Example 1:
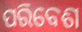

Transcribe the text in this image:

ପରିବେଶ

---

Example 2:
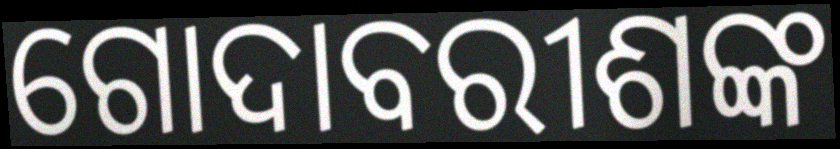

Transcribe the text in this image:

ଗୋଦାବରୀଶଙ୍କ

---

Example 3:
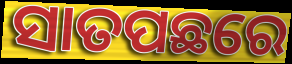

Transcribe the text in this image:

ସାତପଛରେ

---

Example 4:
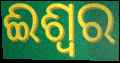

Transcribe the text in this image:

ଈଶ୍ବର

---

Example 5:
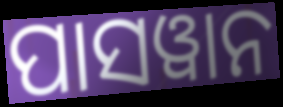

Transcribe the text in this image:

ପାସୱାନ